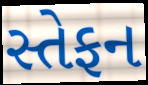
સ્તેફન